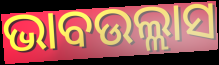
ଭାବଉଲ୍ଲାସ